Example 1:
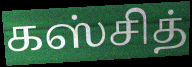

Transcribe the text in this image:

கஸ்சித்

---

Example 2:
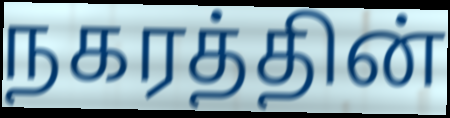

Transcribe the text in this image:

நகரத்தின்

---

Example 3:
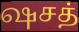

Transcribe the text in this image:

ஷசத்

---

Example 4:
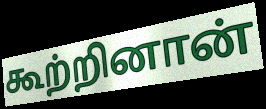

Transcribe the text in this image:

கூற்றினான்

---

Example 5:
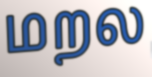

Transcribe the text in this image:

மறல